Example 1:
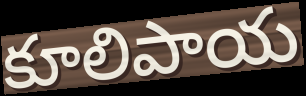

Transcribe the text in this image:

కూలిపాయ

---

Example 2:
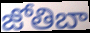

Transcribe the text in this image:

జోతిబా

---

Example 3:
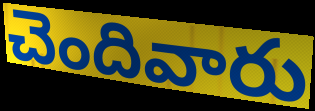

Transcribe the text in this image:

చెందివారు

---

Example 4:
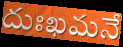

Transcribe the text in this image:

దుఃఖమనే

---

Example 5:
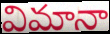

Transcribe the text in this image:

విమానా